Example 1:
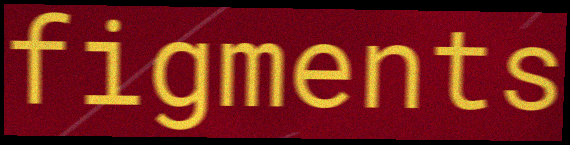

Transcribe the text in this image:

figments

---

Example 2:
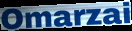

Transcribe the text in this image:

Omarzai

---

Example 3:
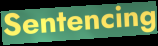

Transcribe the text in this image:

Sentencing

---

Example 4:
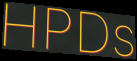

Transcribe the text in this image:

HPDs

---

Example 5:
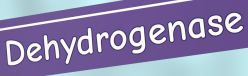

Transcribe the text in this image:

Dehydrogenase